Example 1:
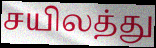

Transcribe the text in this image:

சயிலத்து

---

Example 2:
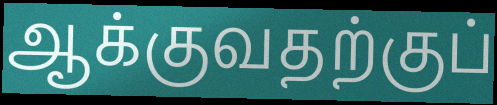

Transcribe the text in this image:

ஆக்குவதற்குப்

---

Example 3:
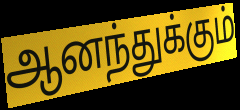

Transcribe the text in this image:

ஆனந்துக்கும்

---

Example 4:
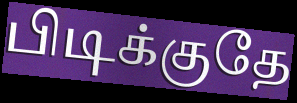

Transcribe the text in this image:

பிடிக்குதே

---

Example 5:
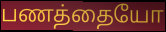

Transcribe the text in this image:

பணத்தையோ